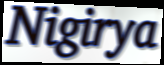
Nigirya